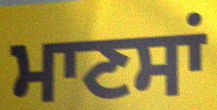
ਮਾਣਸਾਂ